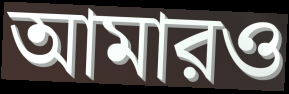
আমারও